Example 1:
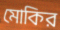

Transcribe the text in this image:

মোকির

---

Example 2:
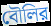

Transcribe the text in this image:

বৌলির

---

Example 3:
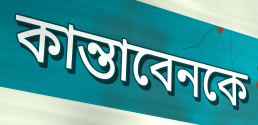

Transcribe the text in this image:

কান্তাবেনকে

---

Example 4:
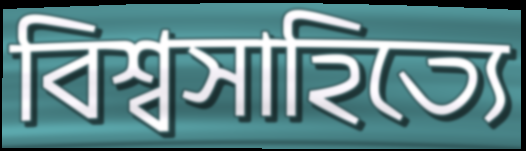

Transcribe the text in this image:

বিশ্বসাহিত্যে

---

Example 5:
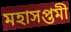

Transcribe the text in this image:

মহাসপ্তমী